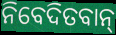
ନିବେଦିତବାନ୍